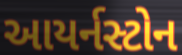
આયર્નસ્ટોન